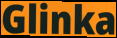
Glinka